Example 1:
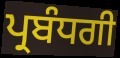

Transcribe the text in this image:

ਪ੍ਰਬੰਧਗੀ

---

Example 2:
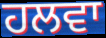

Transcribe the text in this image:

ਹਲਵਾ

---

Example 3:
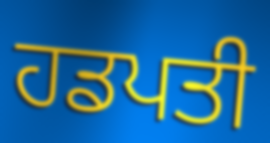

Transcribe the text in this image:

ਹਡਪਤੀ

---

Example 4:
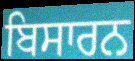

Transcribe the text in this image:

ਬਿਸਾਰਨ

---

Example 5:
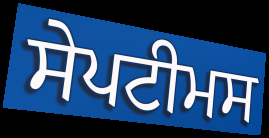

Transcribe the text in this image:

ਸੇਪਟੀਮਸ